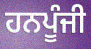
ਹਨਪੂੰਜੀ